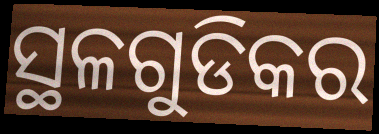
ସ୍ଥଳଗୁଡିକର